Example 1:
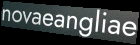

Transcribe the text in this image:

novaeangliae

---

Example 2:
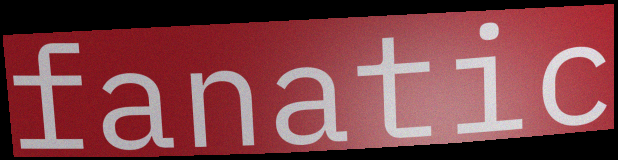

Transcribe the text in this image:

fanatic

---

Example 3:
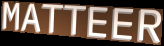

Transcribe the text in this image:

MATTEER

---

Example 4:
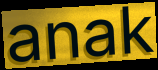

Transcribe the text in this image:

anak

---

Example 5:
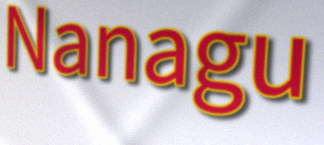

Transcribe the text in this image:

Nanagu